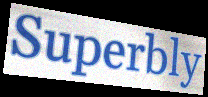
Superbly